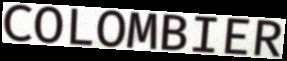
COLOMBIER